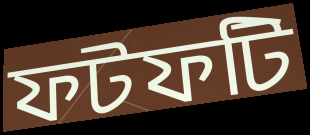
ফটফটি